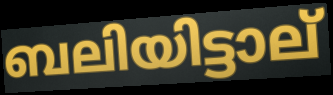
ബലിയിട്ടാല്